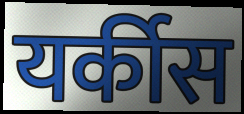
यर्कीस